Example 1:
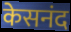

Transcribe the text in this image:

केसनंद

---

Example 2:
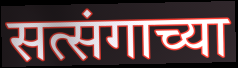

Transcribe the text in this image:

सत्संगाच्या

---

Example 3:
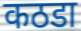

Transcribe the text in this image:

कठडा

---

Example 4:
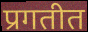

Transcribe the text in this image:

प्रगतीत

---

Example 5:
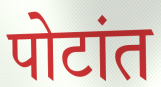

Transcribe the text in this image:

पोटांत